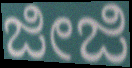
ಜೀಜಿ